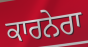
ਕਾਰਨੇਰਾ